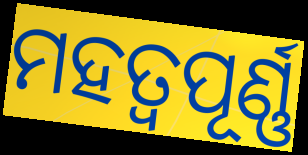
ମହତ୍ଵପୂର୍ଣ୍ଣ